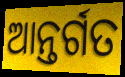
ଆନ୍ତର୍ଗତ